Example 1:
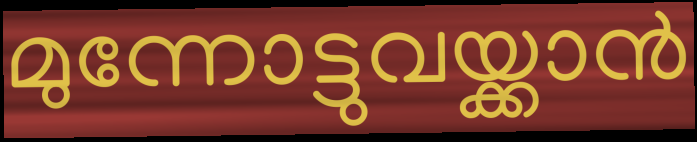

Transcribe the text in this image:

മുന്നോട്ടുവയ്ക്കാൻ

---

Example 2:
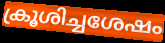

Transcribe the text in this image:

ക്രൂശിച്ചശേഷം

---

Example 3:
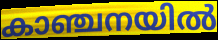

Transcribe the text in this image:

കാഞ്ചനയിൽ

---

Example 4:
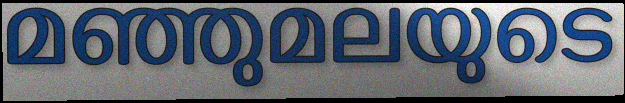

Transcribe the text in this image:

മഞ്ഞുമലയുടെ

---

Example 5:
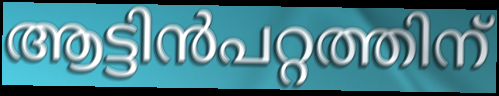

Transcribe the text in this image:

ആട്ടിൻപറ്റത്തിന്